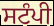
ਸਟੰਪੀ